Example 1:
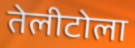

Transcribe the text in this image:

तेलीटोला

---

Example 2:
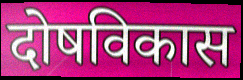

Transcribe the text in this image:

दोषविकास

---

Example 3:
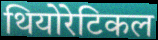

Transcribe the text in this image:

थियोरेटिकल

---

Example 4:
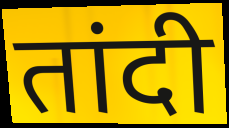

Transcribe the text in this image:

तांदी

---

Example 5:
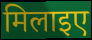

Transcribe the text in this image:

मिलाइए